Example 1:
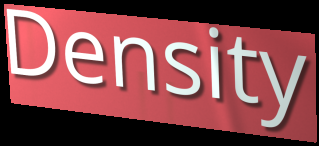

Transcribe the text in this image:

Density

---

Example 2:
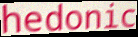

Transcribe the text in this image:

hedonic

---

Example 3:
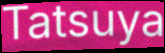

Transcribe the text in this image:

Tatsuya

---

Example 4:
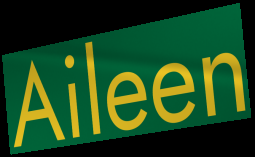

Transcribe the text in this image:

Aileen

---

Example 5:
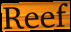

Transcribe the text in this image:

Reef